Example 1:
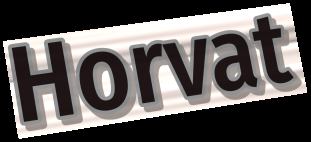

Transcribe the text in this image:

Horvat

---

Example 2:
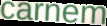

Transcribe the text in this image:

carnem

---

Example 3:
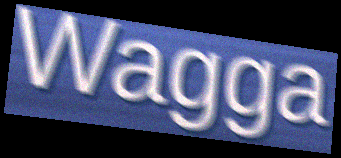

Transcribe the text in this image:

Wagga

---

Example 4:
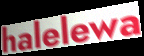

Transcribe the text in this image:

halelewa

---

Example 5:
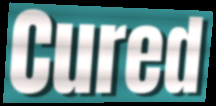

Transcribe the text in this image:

Cured